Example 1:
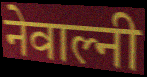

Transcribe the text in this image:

नेवाल्नी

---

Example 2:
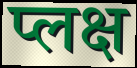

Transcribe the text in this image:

प्लक्ष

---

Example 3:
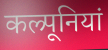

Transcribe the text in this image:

कल्पूनियां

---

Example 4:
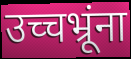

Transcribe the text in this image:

उच्चभ्रूंना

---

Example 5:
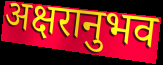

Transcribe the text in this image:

अक्षरानुभव